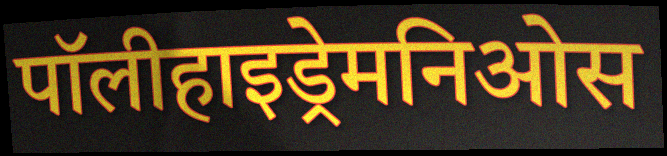
पॉलीहाइड्रेमनिओस